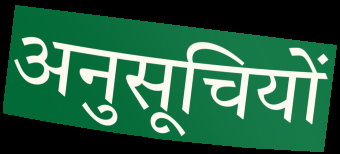
अनुसूचियों